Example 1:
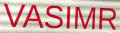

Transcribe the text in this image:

VASIMR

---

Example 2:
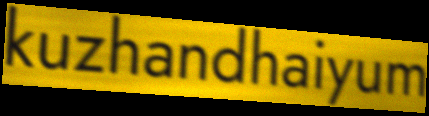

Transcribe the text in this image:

kuzhandhaiyum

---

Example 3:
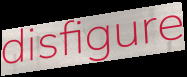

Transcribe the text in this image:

disfigure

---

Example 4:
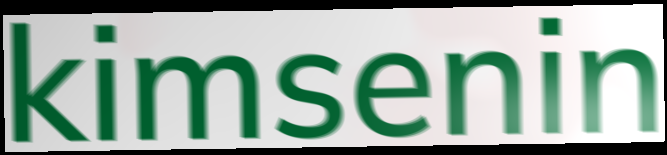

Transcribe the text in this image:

kimsenin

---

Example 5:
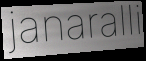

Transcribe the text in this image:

janaralli